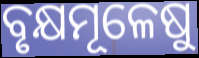
ବୃକ୍ଷମୂଳେଷୁ